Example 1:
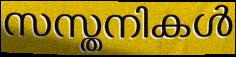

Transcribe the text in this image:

സസ്തനികൾ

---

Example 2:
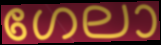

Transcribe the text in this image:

ഗേലാ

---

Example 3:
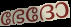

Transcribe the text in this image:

ഭേദോ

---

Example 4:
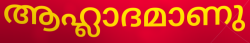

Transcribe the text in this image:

ആഹ്ലാദമാണു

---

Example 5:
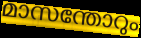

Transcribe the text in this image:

മാസന്തോറും